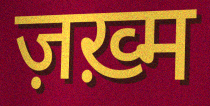
ज़ख़्म